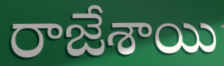
రాజేశాయి